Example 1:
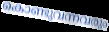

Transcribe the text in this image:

കൊണ്ടുവന്നവരും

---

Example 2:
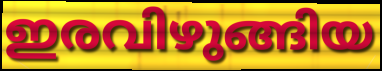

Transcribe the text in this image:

ഇരവിഴുങ്ങിയ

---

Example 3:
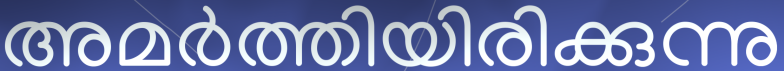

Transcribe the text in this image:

അമർത്തിയിരിക്കുന്നു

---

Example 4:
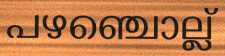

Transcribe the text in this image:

പഴഞ്ചൊല്ല്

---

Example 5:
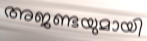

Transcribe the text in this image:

അജണ്ടയുമായി